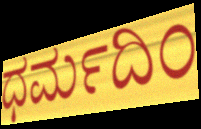
ಧರ್ಮದಿಂ